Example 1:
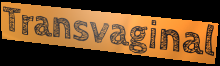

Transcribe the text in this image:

Transvaginal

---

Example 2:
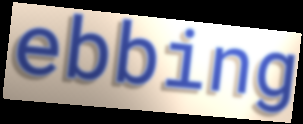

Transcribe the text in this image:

ebbing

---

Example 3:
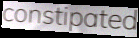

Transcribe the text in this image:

constipated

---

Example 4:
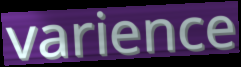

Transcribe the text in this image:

varience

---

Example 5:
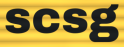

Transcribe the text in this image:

scsg